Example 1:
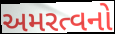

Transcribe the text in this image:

અમરત્વનો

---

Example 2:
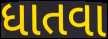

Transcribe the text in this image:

ધાતવા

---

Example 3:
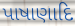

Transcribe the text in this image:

પાષાણાદિ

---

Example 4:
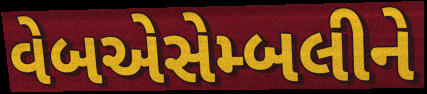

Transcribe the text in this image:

વેબએસેમ્બલીને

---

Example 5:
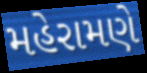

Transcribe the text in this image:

મહેરામણે